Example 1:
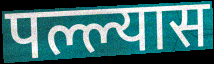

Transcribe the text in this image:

पल्ल्यास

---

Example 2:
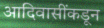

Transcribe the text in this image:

आदिवासींकडून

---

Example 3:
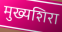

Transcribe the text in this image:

मुख्यशिरा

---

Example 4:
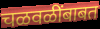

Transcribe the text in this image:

चळवळींबाबत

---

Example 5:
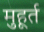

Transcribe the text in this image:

मुहूर्त